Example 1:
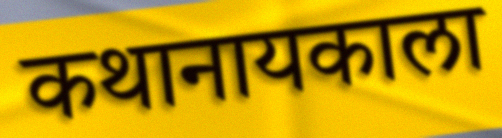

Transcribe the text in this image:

कथानायकाला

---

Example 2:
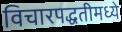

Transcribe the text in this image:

विचारपद्धतीमध्ये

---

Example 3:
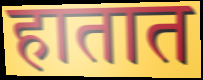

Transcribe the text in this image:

हातात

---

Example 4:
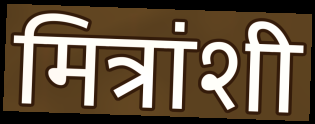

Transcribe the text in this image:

मित्रांशी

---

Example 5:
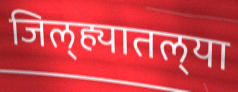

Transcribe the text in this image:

जिल्ह्यातल्या